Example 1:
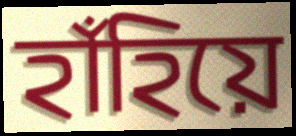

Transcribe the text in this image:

হাঁহিয়ে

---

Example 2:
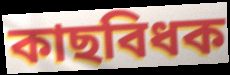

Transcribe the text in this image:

কাছবিধক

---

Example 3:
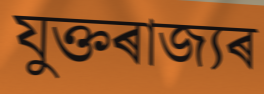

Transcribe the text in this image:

যুক্তৰাজ্যৰ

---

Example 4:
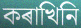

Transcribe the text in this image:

কৰাখিনি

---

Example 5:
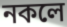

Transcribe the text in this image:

নকলে